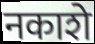
नकाशे